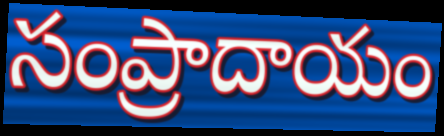
సంప్రాదాయం